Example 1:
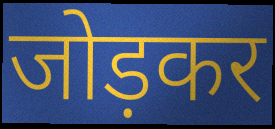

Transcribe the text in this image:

जोड़कर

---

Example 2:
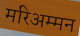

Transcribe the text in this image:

मरिअम्मन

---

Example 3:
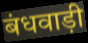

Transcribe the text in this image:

बंधवाड़ी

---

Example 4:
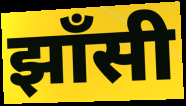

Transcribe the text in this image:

झाँसी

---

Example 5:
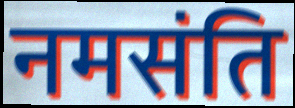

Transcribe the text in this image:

नमसंति